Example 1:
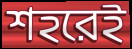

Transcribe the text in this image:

শহরেই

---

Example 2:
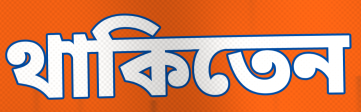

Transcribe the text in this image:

থাকিতেন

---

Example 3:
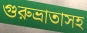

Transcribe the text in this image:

গুরুভ্রাতাসহ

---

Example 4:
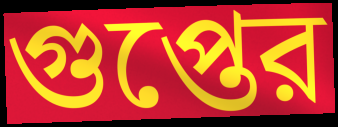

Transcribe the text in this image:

গুপ্তের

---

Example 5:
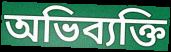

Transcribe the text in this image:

অভিব্যক্তি